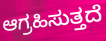
ಆಗ್ರಹಿಸುತ್ತದೆ